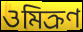
ওমিক্রণ